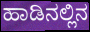
ಹಾಡಿನಲ್ಲಿನ